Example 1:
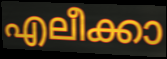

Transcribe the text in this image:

എലീക്കാ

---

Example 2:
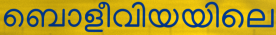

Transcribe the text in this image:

ബൊളീവിയയിലെ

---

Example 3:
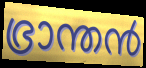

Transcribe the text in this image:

ഭ്രാന്തൻ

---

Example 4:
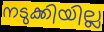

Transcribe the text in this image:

നടുക്കിയില്ല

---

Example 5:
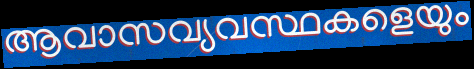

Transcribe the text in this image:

ആവാസവ്യവസ്ഥകളെയും